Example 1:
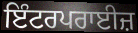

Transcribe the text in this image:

ਇੰਟਰਪਰਾਈਜ਼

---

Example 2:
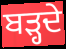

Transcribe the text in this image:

ਬੜ੍ਹਦੇ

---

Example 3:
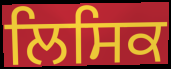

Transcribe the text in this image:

ਲਿਸਿਕ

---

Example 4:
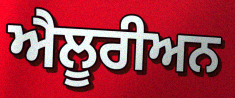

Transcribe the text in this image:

ਐਲੂਰੀਅਨ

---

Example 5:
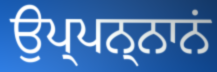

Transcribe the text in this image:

ਉਪ੍ਪਨ੍ਨਾਨਂ